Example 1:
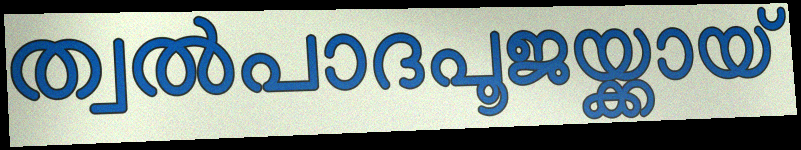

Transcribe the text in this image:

ത്വൽപാദപൂജയ്ക്കായ്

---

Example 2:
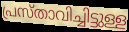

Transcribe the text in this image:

പ്രസ്താവിച്ചിട്ടുള്ള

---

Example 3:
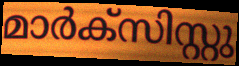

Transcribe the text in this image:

മാർക്സിസ്റ്റു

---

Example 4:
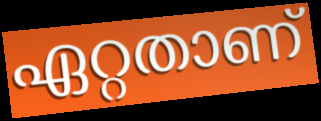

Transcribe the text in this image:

ഏറ്റതാണ്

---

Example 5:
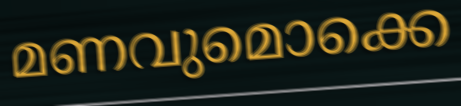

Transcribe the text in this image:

മണവുമൊക്കെ